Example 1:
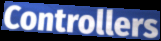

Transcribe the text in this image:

Controllers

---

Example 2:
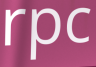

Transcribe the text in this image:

rpc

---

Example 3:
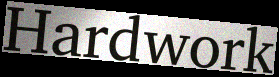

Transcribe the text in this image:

Hardwork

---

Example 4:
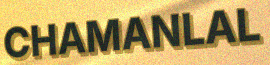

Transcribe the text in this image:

CHAMANLAL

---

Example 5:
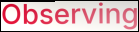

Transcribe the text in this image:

Observing